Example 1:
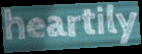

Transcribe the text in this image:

heartily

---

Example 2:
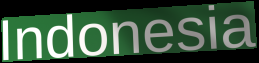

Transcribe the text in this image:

Indonesia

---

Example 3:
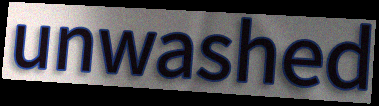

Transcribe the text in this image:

unwashed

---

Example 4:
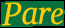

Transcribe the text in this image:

Pare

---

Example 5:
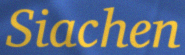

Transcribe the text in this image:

Siachen